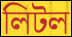
লিটল